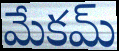
మేకమ్